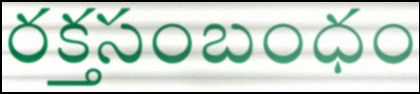
రక్తసంబంధం